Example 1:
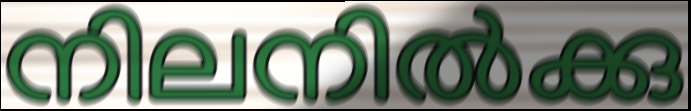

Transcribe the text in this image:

നിലനിൽക്കു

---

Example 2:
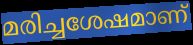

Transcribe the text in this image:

മരിച്ചശേഷമാണ്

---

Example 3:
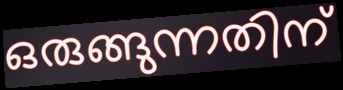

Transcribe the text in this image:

ഒരുങ്ങുന്നതിന്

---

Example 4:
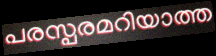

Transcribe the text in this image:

പരസ്പരമറിയാത്ത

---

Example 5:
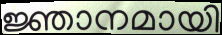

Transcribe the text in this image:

ജ്ഞാനമായി